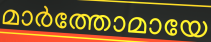
മാർത്തോമായേ